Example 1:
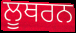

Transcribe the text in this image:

ਲੂਥਰਨ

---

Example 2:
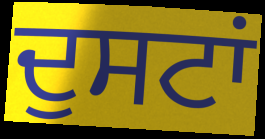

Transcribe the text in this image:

ਦੁਸਟਾਂ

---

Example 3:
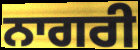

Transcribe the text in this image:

ਨਾਗਰੀ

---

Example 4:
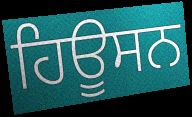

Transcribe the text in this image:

ਹਿਊਸਨ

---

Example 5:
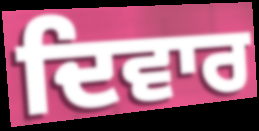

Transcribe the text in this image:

ਦਿਵਾਰ